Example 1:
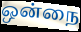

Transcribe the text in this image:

ஒன்நை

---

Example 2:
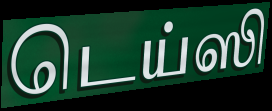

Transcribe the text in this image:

டெய்ஸி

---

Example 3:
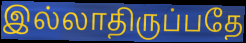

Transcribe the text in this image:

இல்லாதிருப்பதே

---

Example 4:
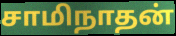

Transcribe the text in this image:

சாமிநாதன்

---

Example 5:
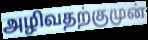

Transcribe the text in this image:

அழிவதற்குமுன்